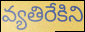
వ్యతిరేకిని